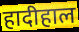
हादीहाल